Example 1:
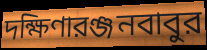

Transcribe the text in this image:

দক্ষিণারঞ্জনবাবুর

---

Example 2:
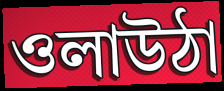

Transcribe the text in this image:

ওলাউঠা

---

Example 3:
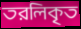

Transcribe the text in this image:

তরলিকৃত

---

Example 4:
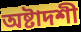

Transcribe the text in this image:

অষ্টাদশী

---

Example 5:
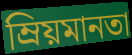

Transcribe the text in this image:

ম্রিয়মানতা